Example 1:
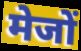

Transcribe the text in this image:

मेजों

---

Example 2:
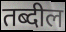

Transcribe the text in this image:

तब्‍दील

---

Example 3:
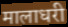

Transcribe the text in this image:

मालाधरी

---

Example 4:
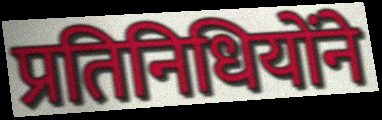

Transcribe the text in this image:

प्रतिनिधियोंने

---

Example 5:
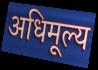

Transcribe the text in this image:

अधिमूल्य